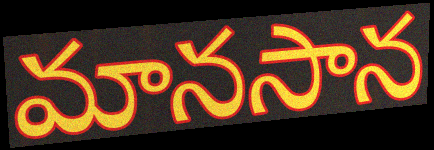
మానసాన